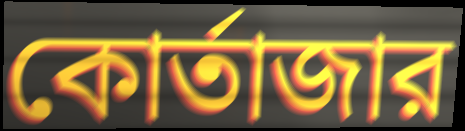
কোর্তাজার